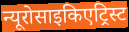
न्यूरोसाइकिएट्रिस्ट